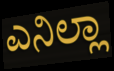
ಎನಿಲ್ಲಾ